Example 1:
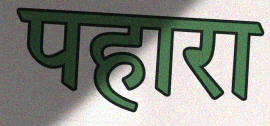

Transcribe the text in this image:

पहारा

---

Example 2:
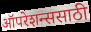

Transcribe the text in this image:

ऑपरेशन्ससाठी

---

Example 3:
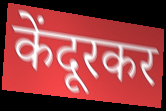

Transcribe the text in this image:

केंदूरकर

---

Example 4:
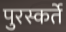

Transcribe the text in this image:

पुरस्कर्ते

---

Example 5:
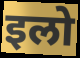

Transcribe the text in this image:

इलो